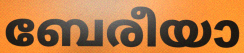
ബേരീയാ